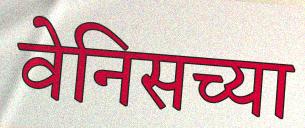
वेनिसच्या